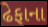
ઢેફાના